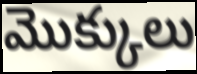
మొక్కులు